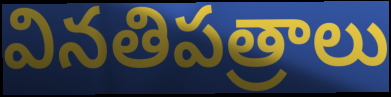
వినతిపత్రాలు